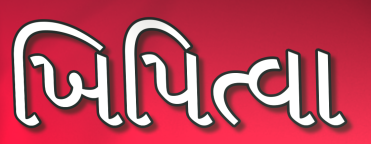
ખિપિત્વા